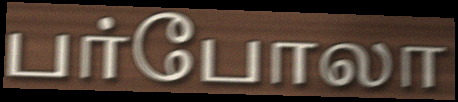
பர்போலா